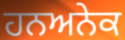
ਹਨਅਨੇਕ